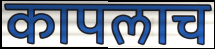
कापलाच